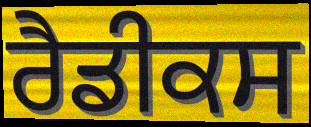
ਰੈਡੀਕਸ